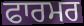
ਫਾਰਮਰ